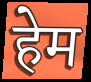
हेम